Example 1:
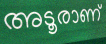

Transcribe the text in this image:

അടൂരാണ്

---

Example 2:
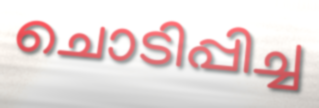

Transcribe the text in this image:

ചൊടിപ്പിച്ച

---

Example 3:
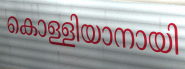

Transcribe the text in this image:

കൊള്ളിയാനായി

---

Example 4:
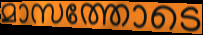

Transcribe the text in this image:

മാസത്തോടെ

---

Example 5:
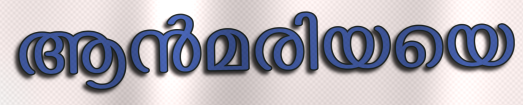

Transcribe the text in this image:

ആൻമരിയയെ